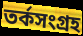
তর্কসংগ্রহ